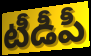
టీడీపీ